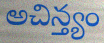
అచిన్త్యం